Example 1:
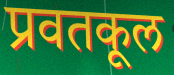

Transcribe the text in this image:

प्रवतकूल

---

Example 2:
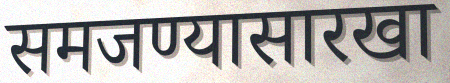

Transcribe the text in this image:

समजण्यासारखा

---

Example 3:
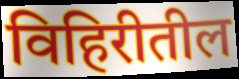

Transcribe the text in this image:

विहिरीतील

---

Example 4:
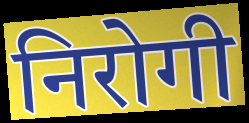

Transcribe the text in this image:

निरोगी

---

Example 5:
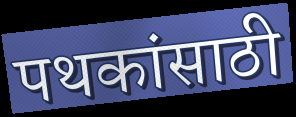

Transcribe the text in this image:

पथकांसाठी